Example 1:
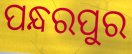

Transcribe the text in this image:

ପନ୍ଧରପୁର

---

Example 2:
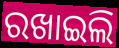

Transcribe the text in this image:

ରଖାଇଲି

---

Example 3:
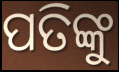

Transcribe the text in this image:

ପତିଙ୍କୁ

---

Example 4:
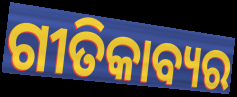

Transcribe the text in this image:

ଗୀତିକାବ୍ୟର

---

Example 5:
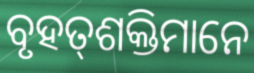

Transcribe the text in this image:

ବୃହତ୍‌ଶକ୍ତିମାନେ